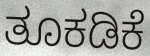
ತೂಕಡಿಕೆ